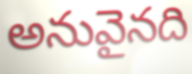
అనువైనది